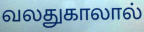
வலதுகாலால்